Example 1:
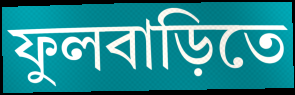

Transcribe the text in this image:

ফুলবাড়িতে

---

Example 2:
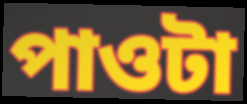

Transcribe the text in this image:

পাওটা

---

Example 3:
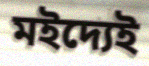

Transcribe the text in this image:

মইদ্যেই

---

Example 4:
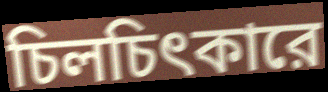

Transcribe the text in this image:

চিলচিৎকারে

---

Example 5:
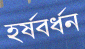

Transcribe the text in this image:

হর্ষবর্ধন